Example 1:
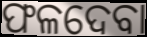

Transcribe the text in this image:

ଫଳଦେବା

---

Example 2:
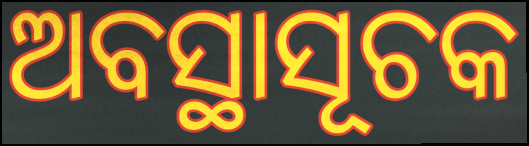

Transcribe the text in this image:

ଅବସ୍ଥାସୂଚକ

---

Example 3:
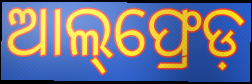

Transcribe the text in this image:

ଆଲ୍‌ଫ୍ରେଡ଼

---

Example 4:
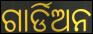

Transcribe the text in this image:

ଗାର୍ଡିଅନ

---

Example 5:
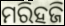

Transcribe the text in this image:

ମରିହଜି